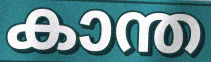
കാന്ത